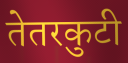
तेतरकुटी